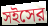
সইসের